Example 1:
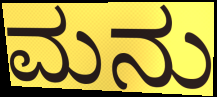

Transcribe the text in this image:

ಮನು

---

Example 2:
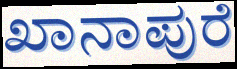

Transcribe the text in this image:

ಖಾನಾಪುರೆ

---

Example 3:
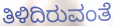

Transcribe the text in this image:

ತಿಳಿದಿರುವಂತೆ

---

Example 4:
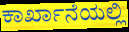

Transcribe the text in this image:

ಕಾರ್ಖಾನೆಯಲ್ಲಿ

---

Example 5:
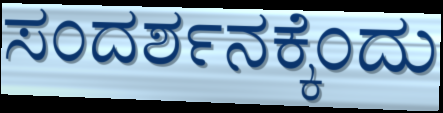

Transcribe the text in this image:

ಸಂದರ್ಶನಕ್ಕೆಂದು